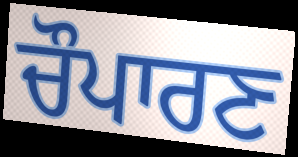
ਚੌਪਾਰਣ